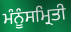
ਮੰਨੂੰਸਮ੍ਰਿਤੀ